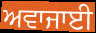
ਅਵਾਜਾਈ